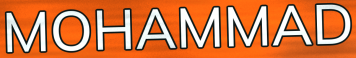
MOHAMMAD